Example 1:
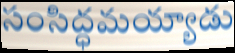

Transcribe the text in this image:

సంసిద్ధమయ్యాడు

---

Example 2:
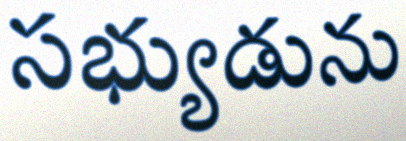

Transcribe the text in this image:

సభ్యుడును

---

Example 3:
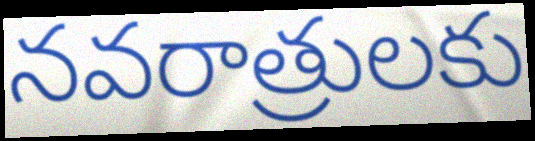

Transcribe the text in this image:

నవరాత్రులకు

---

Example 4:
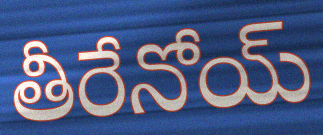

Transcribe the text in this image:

తీరేనోయ్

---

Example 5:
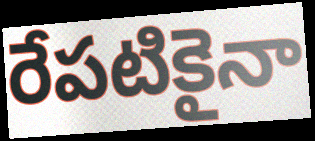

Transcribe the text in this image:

రేపటికైనా